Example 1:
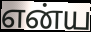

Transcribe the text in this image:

என்ய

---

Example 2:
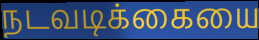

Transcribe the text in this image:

நடவடிக்கையை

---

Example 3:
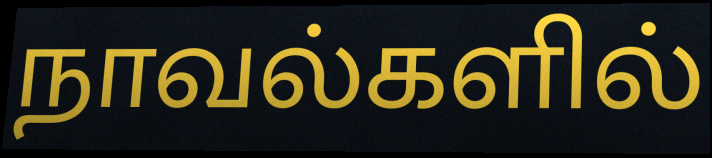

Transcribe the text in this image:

நாவல்களில்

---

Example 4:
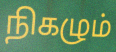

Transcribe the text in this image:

நிகழும்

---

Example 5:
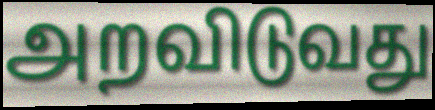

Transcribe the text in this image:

அறவிடுவது